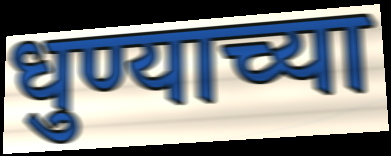
धुण्याच्या